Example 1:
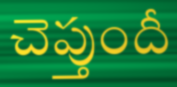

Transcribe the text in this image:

చెప్తుందీ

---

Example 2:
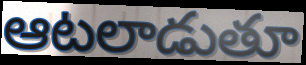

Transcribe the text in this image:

ఆటలాడుతూ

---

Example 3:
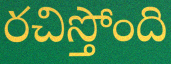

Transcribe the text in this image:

రచిస్తోంది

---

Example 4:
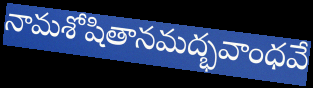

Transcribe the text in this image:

నామశోషితానమద్భవాంధవే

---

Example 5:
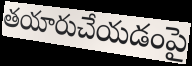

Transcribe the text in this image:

తయారుచేయడంపై